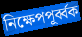
নিক্ষেপপূর্ব্বক